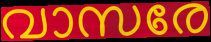
വാസരേ